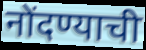
नोंदण्याची